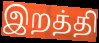
இறத்தி